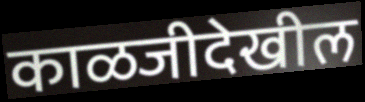
काळजीदेखील